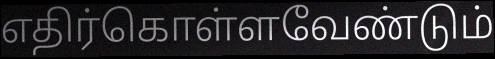
எதிர்கொள்ளவேண்டும்